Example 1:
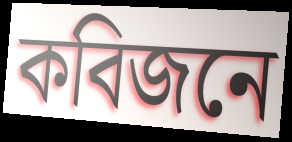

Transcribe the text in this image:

কবিজনে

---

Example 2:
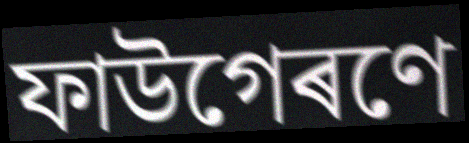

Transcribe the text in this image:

ফাউগেৰণে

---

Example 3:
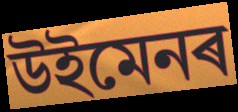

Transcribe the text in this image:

উইমেনৰ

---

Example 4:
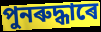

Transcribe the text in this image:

পুনৰুদ্ধাৰে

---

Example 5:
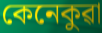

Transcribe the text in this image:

কেনেকুৱা